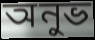
অনুভ